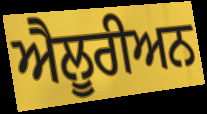
ਐਲੂਰੀਅਨ